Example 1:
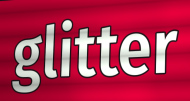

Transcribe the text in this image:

glitter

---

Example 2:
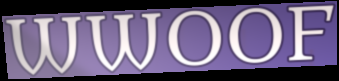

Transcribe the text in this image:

WWOOF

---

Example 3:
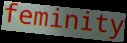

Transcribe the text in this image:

feminity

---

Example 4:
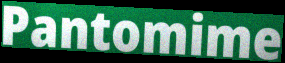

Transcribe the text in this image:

Pantomime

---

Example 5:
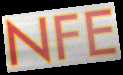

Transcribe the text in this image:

NFE